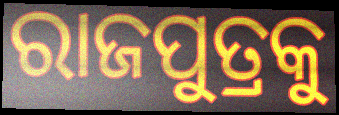
ରାଜପୁତ୍ରକୁ